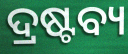
ଦ୍ରଷ୍ଟବ୍ୟ